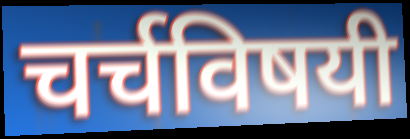
चर्चविषयी